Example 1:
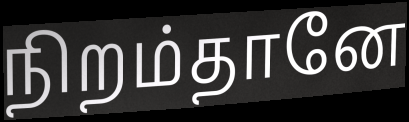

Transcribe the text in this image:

நிறம்தானே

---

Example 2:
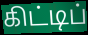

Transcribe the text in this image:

கிட்டிப்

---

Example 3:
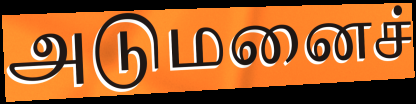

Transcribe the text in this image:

அடுமனைச்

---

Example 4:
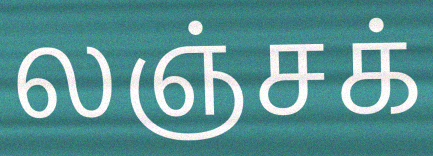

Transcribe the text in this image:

லஞ்சக்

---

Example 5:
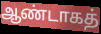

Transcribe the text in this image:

ஆண்டாகத்